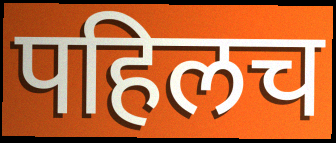
पहिलच